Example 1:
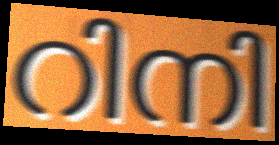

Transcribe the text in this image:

റിനി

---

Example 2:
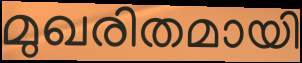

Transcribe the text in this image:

മുഖരിതമായി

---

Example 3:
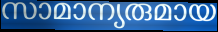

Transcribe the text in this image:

സാമാന്യരുമായ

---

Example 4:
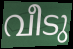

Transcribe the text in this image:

വീടു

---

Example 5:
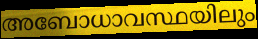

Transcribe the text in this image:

അബോധാവസ്ഥയിലും